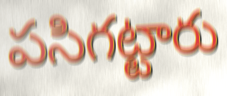
పసిగట్టారు